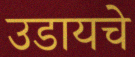
उडायचे